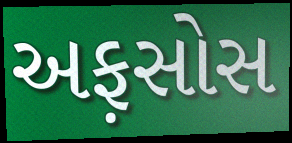
અફ઼સોસ